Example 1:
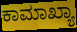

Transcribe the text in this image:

ಕಾಮಾಖ್ಯಾ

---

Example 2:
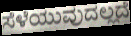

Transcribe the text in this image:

ಸೆಳೆಯುವುದಲ್ಲದೆ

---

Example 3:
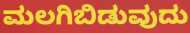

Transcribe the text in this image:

ಮಲಗಿಬಿಡುವುದು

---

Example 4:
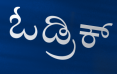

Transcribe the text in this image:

ಓಡ್ರಿಕ್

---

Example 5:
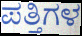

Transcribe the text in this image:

ಪತ್ತಿಗಳ